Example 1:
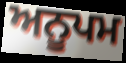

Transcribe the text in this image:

ਅਨੂਪਮ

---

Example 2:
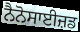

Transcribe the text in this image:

ਨੈਨੋਸਾਈਜ਼ਡ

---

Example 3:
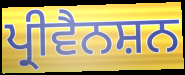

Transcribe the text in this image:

ਪ੍ਰੀਵੈਨਸ਼ਨ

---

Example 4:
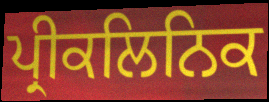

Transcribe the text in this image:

ਪ੍ਰੀਕਲਿਨਿਕ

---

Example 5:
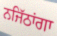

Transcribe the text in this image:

ਨਜਿੱਠਾਂਗਾ